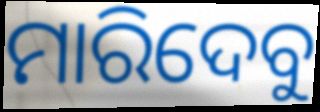
ମାରିଦେବୁ